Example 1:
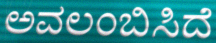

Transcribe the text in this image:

ಅವಲಂಬಿಸಿದೆ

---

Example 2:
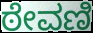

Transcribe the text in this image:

ಠೇವಣಿ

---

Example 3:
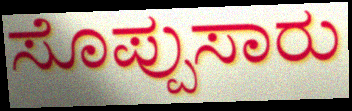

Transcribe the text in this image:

ಸೊಪ್ಪುಸಾರು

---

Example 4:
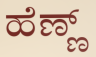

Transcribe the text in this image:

ಹೆಣ್ಣ್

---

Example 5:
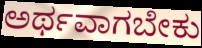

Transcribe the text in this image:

ಅರ್ಥವಾಗಬೇಕು